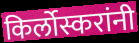
किर्लोस्करांनी